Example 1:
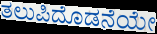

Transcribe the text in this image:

ತಲುಪಿದೊಡನೆಯೇ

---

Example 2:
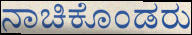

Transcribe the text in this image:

ನಾಚಿಕೊಂಡರು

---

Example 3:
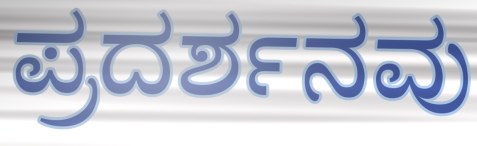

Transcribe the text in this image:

ಪ್ರದರ್ಶನವು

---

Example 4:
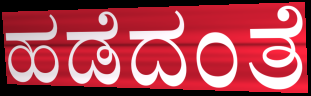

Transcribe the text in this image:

ಹಡೆದಂತೆ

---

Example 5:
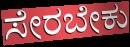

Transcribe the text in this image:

ಸೇರಬೇಕು